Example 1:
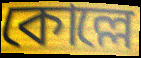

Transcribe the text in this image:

কোল্লে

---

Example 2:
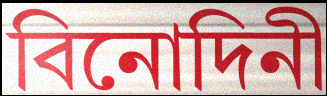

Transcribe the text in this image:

বিনোদিনী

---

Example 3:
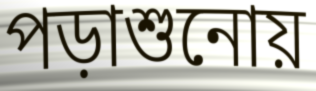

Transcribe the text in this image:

পড়াশুনোয়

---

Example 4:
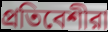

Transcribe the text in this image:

প্রতিবেশীরা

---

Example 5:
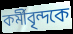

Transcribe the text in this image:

কর্মীবৃন্দকে